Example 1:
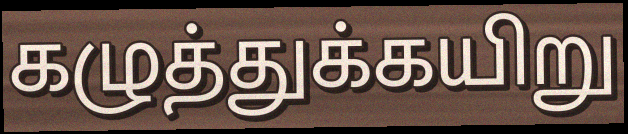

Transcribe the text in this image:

கழுத்துக்கயிறு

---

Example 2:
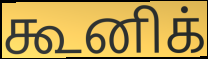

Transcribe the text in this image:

கூனிக்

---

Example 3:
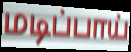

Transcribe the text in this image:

மடிப்பாய்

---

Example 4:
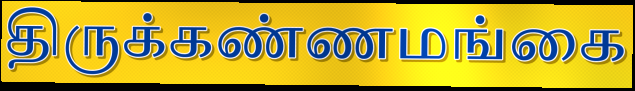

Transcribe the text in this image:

திருக்கண்ணமங்கை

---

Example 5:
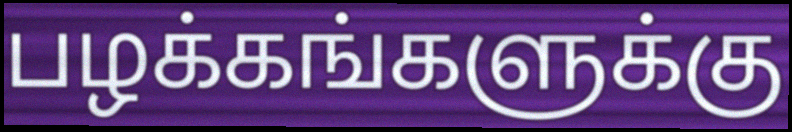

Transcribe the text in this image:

பழக்கங்களுக்கு